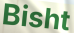
Bisht